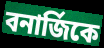
বনার্জিকে